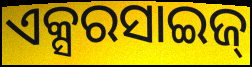
ଏକ୍ସରସାଇଜ୍